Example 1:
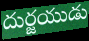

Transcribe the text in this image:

దుర్జయుడు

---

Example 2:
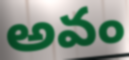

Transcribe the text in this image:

అవం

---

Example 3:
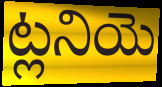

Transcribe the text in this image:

ట్లనియె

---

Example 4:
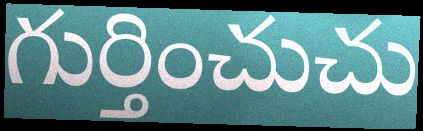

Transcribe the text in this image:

గుర్తించుచు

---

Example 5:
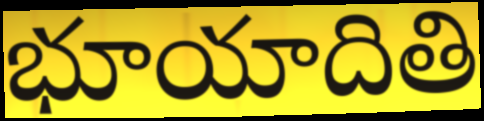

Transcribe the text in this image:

భూయాదితి